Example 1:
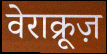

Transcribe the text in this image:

वेराक्रूज़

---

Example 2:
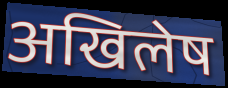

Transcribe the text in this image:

अखिलेष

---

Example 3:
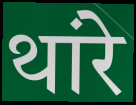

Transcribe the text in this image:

थांरे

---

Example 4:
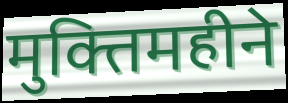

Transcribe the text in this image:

मुक्तिमहीने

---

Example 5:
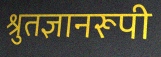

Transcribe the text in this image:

श्रुतज्ञानरूपी